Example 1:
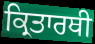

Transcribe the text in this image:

ਕ੍ਰਿਤਾਰਥੀ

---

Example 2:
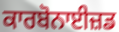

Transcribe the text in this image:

ਕਾਰਬੋਨਾਈਜ਼ਡ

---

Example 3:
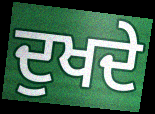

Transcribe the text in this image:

ਦੁਖਦੇ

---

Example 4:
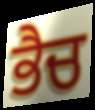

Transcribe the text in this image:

ਭੈਚ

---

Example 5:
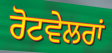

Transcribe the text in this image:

ਰੋਟਵੇਲਰਾਂ